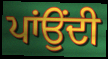
ਪਾਂਉਂਦੀ